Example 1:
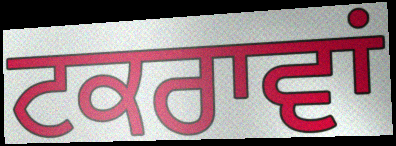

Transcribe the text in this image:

ਟਕਰਾਵਾਂ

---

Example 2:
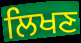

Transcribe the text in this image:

ਲਿਖਣ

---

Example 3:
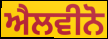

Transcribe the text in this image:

ਐਲਵੀਨੋ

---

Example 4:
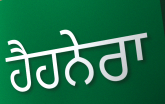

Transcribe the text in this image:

ਹੈਹਨੇਰਾ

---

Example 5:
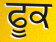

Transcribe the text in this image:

ਫੂਕ